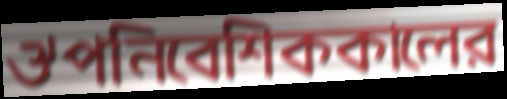
ঔপনিবেশিককালের